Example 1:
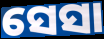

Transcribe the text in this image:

ସେସା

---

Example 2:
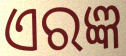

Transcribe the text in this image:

ଏରଜ୍ଞ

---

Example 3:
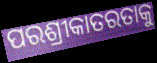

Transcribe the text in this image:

ପରଶ୍ରୀକାତରତାକୁ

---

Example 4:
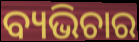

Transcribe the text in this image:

ବ୍ୟଭିଚାର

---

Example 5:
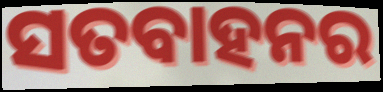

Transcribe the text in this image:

ସତବାହନର